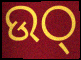
ଉଠ୍